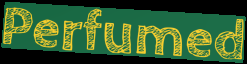
Perfumed